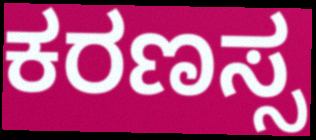
ಕರಣಸ್ಸ